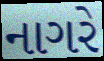
નાગરે